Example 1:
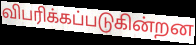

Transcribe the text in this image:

விபரிக்கப்படுகின்றன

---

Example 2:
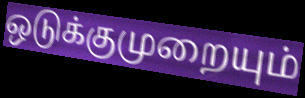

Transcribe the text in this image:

ஒடுக்குமுறையும்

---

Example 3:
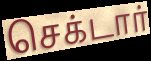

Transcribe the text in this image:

செக்டார்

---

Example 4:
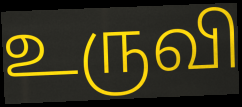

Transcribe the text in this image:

உருவி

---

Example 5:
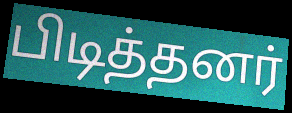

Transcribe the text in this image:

பிடித்தனர்